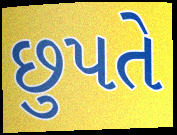
છુપતે